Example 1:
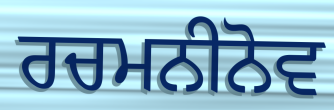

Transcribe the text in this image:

ਰਚਮਨੀਨੋਵ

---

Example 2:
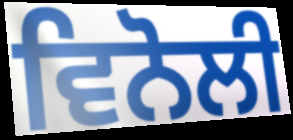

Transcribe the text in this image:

ਵਿਨੋਲੀ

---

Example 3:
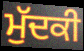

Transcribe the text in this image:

ਮੁੱਦਕੀ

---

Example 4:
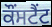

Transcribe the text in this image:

ਕੌਂਸਟੈਂਟ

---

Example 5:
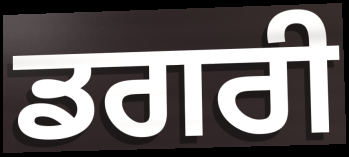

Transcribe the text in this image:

ਡਗਰੀ